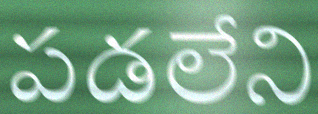
పడలేని